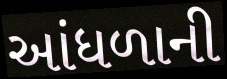
આંધળાની